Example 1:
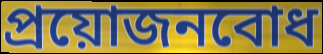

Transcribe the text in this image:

প্ৰয়োজনবোধ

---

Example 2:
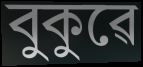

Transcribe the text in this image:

বুকুৱে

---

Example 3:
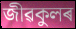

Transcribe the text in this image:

জীৱকুলৰ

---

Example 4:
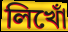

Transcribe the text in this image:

লিখোঁ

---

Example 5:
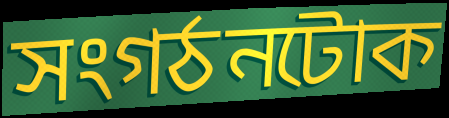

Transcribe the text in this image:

সংগঠনটোক